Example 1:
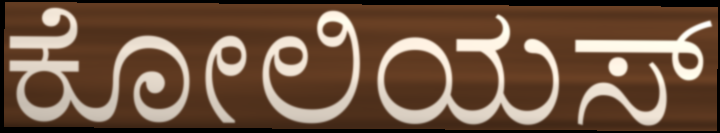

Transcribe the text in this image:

ಕೋಲಿಯಸ್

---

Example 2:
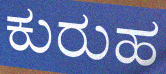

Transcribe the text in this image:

ಕುರುಹ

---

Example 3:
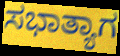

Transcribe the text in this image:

ಸಭಾತ್ಯಾಗ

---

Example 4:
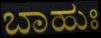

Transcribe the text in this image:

ಬಾಹುಃ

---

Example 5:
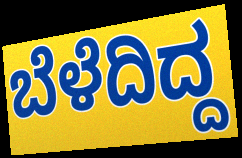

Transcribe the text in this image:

ಬೆಳೆದಿದ್ದ